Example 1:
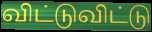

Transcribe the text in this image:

விட்டுவிட்டு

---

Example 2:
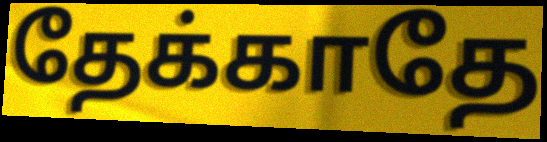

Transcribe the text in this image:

தேக்காதே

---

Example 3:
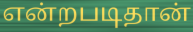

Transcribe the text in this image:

என்றபடிதான்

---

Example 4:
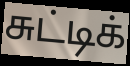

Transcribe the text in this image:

சுட்டிக்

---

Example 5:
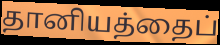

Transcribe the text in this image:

தானியத்தைப்